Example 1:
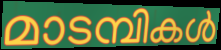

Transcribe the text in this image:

മാടമ്പികൾ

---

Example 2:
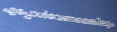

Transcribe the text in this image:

എപ്പോൾവേണമെങ്കിലും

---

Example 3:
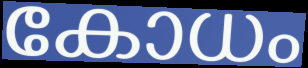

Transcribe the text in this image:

കോധം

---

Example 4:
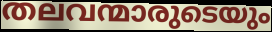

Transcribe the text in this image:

തലവന്മാരുടെയും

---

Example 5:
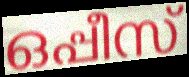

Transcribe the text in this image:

ഒപ്പീസ്